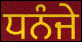
ਧਨੰਜੇ